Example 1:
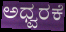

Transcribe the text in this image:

ಅಧ್ವರಕೆ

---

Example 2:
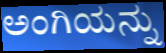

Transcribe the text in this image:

ಅಂಗಿಯನ್ನು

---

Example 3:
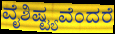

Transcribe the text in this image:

ವೈಶಿಷ್ಟ್ಯವೆಂದರೆ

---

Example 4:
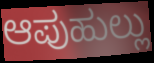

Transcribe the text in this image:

ಆಪುಹುಲ್ಲು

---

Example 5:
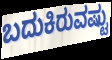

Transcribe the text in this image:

ಬದುಕಿರುವಷ್ಟು